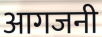
आगजनी